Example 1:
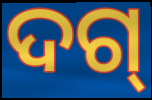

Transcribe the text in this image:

ଦଗ୍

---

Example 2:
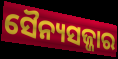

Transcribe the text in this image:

ସୈନ୍ୟସଜ୍ଜାର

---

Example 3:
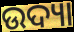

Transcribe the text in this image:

ଉଦ୍ୟା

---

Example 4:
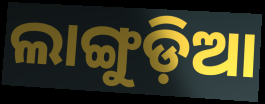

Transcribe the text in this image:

ଲାଙ୍ଗୁଡ଼ିଆ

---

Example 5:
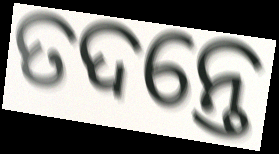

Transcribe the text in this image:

ତଦନ୍ତେ